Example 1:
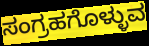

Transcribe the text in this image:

ಸಂಗ್ರಹಗೊಳ್ಳುವ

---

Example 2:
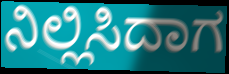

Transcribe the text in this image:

ನಿಲ್ಲಿಸಿದಾಗ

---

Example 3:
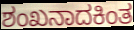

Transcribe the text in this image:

ಶಂಖನಾದಕಿಂತ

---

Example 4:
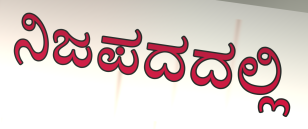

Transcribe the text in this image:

ನಿಜಪದದಲ್ಲಿ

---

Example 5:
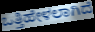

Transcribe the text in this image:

ಒತ್ತಿಹೇಳಲಾಗಿದೆ